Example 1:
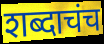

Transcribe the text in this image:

शब्दाचंच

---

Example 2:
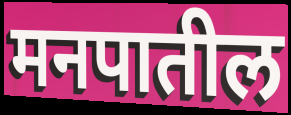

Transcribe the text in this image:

मनपातील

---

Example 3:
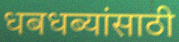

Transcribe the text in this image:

धबधब्यांसाठी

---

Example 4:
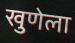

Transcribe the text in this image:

खुणेला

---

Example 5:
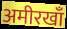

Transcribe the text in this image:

अमीरखाँ